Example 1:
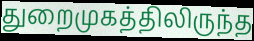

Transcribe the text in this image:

துறைமுகத்திலிருந்த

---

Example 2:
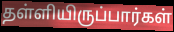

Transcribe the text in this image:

தள்ளியிருப்பார்கள்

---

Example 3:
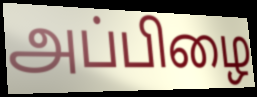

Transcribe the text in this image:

அப்பிழை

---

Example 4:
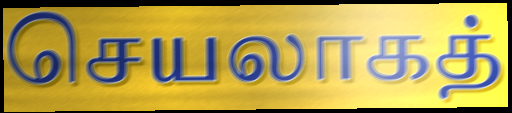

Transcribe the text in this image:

செயலாகத்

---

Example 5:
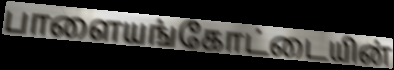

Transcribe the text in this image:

பாளையங்கோட்டையின்